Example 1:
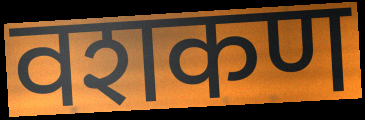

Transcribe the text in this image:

वशकण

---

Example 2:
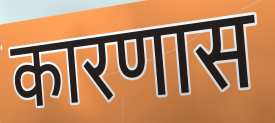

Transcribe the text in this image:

कारणास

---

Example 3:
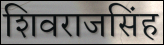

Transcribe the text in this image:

शिवराजसिंह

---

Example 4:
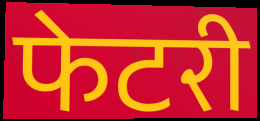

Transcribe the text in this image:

फेटरी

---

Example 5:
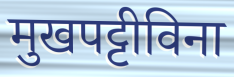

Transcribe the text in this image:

मुखपट्टीविना